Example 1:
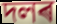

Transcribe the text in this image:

দলৰ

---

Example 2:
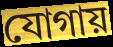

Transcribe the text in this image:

যোগায়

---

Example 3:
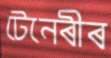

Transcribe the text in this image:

টেনেৰীৰ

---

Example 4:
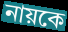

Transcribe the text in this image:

নায়কে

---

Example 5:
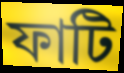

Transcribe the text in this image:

ফাটি